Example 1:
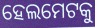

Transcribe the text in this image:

ହେଲମେଟକୁ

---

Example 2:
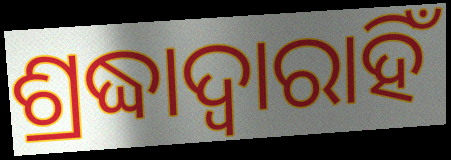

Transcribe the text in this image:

ଶ୍ରଦ୍ଧାଦ୍ୱାରାହିଁ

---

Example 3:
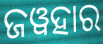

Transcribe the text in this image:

ଜୱହାର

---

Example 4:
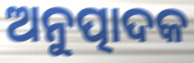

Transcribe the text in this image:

ଅନୁତ୍ପାଦକ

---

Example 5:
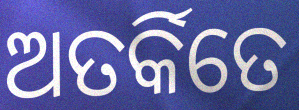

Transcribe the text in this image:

ଅତର୍କିତେ